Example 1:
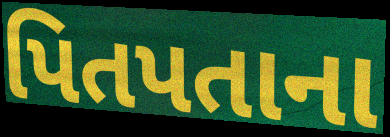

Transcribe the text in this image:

પિતપતાના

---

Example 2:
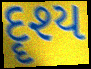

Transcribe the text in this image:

દૄશ્ય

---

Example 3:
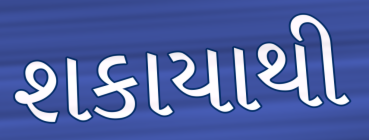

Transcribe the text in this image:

શકાયાથી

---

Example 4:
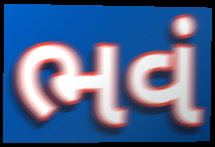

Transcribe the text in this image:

ભવં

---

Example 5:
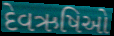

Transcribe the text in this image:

દેવઋષિઓ